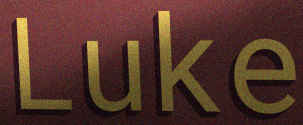
Luke